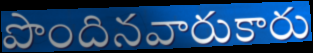
పొందినవారుకారు